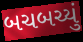
બચબચ્યું